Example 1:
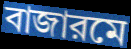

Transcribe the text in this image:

বাজারমে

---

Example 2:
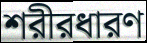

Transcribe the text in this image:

শরীরধারণ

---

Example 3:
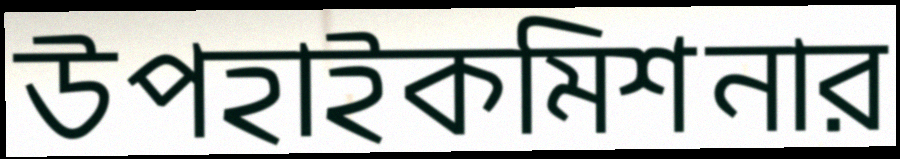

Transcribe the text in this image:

উপহাইকমিশনার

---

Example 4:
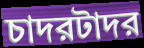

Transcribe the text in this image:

চাদরটাদর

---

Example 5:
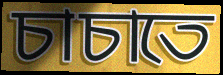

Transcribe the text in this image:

চাচাতে